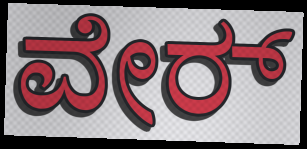
ವೇರ್‍